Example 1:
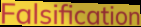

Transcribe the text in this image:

Falsification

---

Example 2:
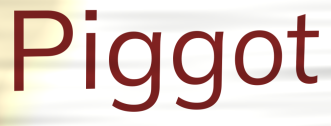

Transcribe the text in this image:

Piggot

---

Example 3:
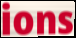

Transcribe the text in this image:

ions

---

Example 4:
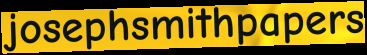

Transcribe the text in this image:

josephsmithpapers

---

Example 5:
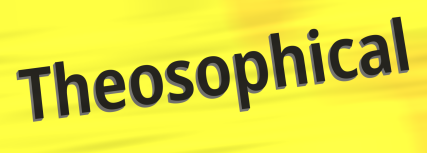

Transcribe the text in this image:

Theosophical